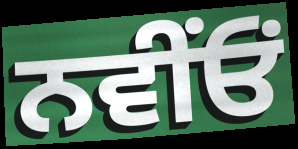
ਨਵੀਂਓਂ